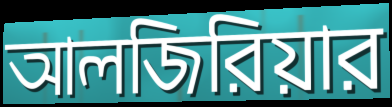
আলজিরিয়ার